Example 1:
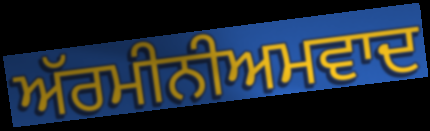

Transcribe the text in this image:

ਅੱਰਮੀਨੀਅਮਵਾਦ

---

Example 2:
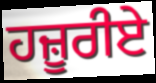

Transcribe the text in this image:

ਹਜ਼ੂਰੀਏ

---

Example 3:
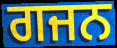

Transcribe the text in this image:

ਗਜਨ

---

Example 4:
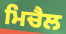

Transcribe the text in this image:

ਮਿਚੈਲ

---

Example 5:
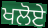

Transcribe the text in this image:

ਖਲੋਏ